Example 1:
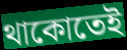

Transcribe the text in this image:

থাকোতেই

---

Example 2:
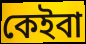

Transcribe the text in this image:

কেইবা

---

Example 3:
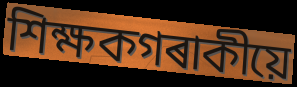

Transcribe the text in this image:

শিক্ষকগৰাকীয়ে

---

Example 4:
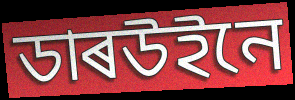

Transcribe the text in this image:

ডাৰউইনে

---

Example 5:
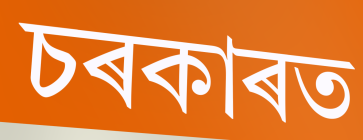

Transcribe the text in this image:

চৰকাৰত